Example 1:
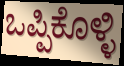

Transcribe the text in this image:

ಒಪ್ಪಿಕೊಳ್ಳಿ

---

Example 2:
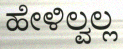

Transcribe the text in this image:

ಹೇಳಿಲ್ವಲ್ಲ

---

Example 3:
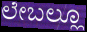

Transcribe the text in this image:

ಲೇಬಲ್ಲೂ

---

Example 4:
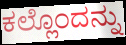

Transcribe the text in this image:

ಕಲ್ಲೊಂದನ್ನು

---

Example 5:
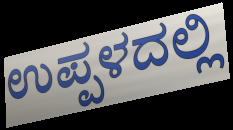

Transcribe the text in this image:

ಉಪ್ಪಳದಲ್ಲಿ